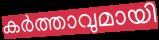
കർത്താവുമായി